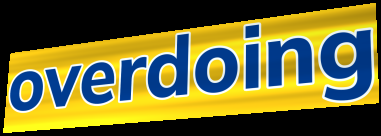
overdoing